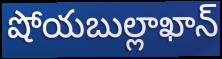
షోయబుల్లాఖాన్